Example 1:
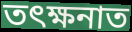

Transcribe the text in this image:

তৎক্ষনাত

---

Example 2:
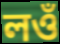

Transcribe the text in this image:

লওঁ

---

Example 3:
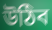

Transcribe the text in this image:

উঠিব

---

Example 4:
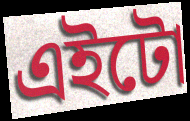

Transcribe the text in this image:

এইটো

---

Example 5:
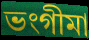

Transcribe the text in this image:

ভংগীমা